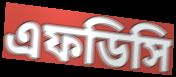
এফডিসি